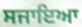
ਸਜਾਇਆ